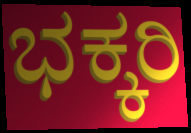
ಭಕ್ಕರಿ